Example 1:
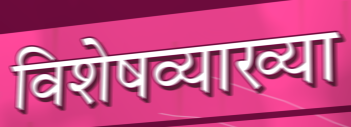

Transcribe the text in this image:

विशेषव्याख्या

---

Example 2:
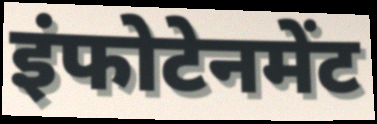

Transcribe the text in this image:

इंफोटेनमेंट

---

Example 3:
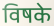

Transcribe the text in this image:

विषके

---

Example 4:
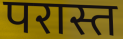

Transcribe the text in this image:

परास्त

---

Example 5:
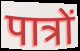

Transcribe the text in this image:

पात्रों